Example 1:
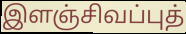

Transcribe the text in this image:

இளஞ்சிவப்புத்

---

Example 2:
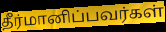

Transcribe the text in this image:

தீர்மானிப்பவர்கள்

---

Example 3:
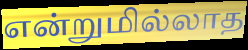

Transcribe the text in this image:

என்றுமில்லாத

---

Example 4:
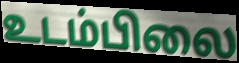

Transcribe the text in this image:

உடம்பிலை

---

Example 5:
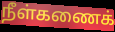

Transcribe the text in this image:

நீள்கணைக்